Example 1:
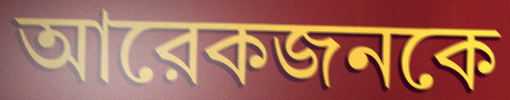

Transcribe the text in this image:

আরেকজনকে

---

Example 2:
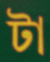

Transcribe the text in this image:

টা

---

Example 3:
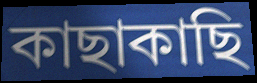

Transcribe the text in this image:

কাছাকাছি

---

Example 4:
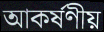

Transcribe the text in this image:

আকর্ষণীয়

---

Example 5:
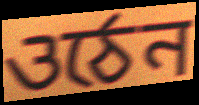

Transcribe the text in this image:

ওঠেন